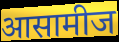
आसामीज